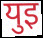
युइ